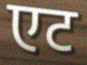
एट